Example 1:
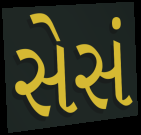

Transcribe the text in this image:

સેસં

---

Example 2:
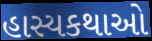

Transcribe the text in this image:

હાસ્યકથાઓ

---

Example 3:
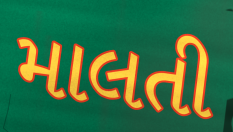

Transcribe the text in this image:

માલતી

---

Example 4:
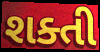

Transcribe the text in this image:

શક્તી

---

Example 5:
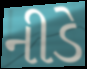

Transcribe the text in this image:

નીડે